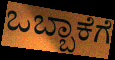
ಒಬ್ಬಾಕೆಗೆ